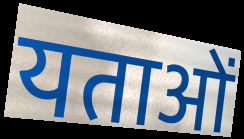
यताओं